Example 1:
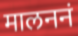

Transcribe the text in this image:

मालननं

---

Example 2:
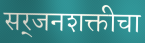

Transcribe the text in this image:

सर्जनशक्तीचा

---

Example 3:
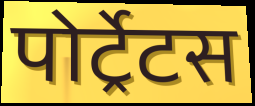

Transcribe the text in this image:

पोर्ट्रेटस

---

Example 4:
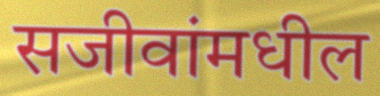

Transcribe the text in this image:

सजीवांमधील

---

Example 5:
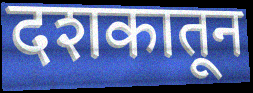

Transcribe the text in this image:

दशकातून